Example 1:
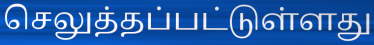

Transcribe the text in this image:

செலுத்தப்பட்டுள்ளது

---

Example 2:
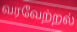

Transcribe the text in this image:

வரவேற்றல்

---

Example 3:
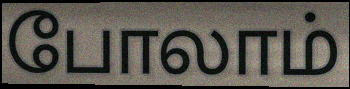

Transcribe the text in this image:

போலாம்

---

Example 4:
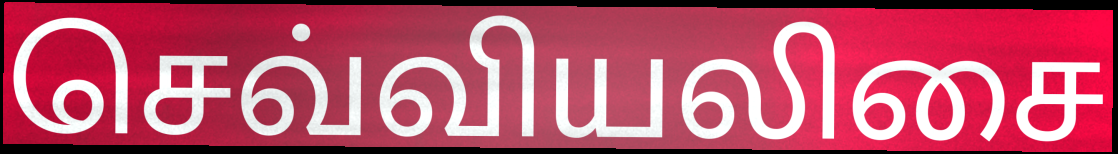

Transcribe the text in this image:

செவ்வியலிசை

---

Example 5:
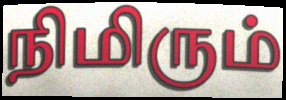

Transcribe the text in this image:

நிமிரும்